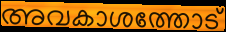
അവകാശത്തോട്